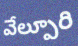
వేల్పూరి